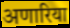
अणारिया